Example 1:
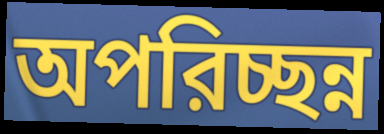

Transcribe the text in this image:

অপরিচ্ছন্ন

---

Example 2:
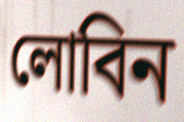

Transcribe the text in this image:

লোবিন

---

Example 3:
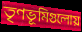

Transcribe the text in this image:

তৃণভূমিগুলোয়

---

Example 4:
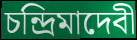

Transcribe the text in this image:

চন্দ্রিমাদেবী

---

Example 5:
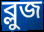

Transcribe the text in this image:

ব্লুজ